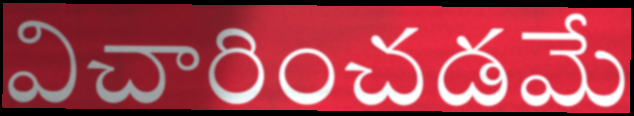
విచారించడమే